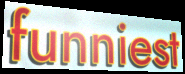
funniest